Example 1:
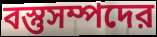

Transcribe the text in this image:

বস্তুসম্পদের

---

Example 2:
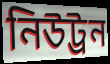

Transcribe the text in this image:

নিউট্রন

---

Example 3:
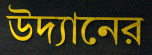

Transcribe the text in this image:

উদ্যানের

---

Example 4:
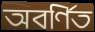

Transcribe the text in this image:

অবর্ণিত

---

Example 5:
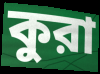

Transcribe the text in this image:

কুরা